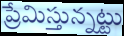
ప్రేమిస్తున్నట్టు